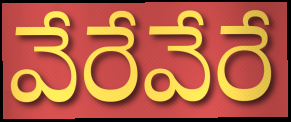
వేరేవేరే